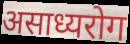
असाध्यरोग